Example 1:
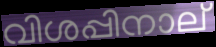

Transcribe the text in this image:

വിശപ്പിനാല്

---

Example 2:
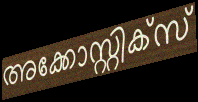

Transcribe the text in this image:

അക്കോസ്റ്റിക്സ്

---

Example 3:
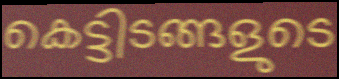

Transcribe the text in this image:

കെട്ടിടങ്ങളുടെ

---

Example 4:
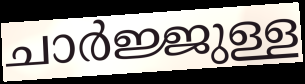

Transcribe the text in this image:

ചാർജ്ജുള്ള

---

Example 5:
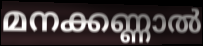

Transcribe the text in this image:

മനക്കണ്ണാൽ